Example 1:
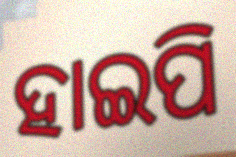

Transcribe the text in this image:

ହାଇପି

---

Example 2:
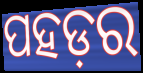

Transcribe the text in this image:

ପହଡ଼ର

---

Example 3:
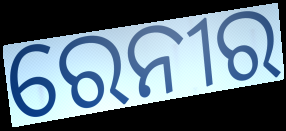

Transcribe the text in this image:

ରେନୀର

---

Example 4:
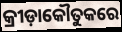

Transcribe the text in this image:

କ୍ରୀଡ଼ାକୌତୁକରେ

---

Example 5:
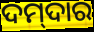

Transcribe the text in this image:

ଦମ୍‌ଦାର